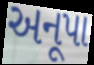
અનૂપા